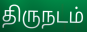
திருநடம்